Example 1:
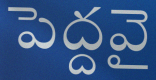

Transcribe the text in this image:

పెద్దవై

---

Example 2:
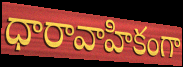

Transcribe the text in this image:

ధారావాహికంగా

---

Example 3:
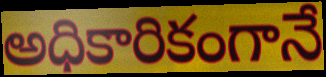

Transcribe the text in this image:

అధికారికంగానే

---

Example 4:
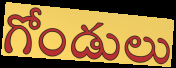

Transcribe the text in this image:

గోండులు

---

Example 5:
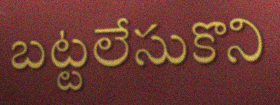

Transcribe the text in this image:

బట్టలేసుకొని